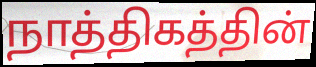
நாத்திகத்தின்